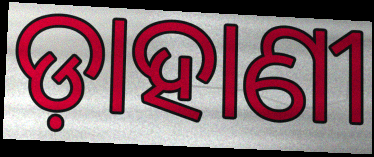
ଡ଼ାହାଣୀ